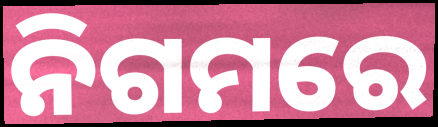
ନିଗମରେ